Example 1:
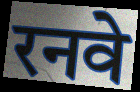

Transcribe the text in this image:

रनवे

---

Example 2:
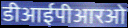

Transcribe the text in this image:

डीआईपीआरओ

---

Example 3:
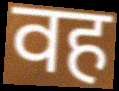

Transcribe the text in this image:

वह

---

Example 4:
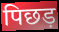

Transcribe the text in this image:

पिछड़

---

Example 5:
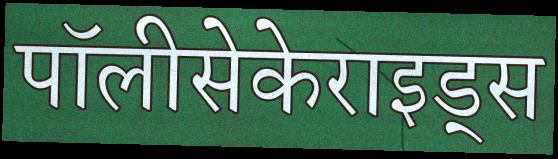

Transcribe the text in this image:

पॉलीसेकेराइड्स